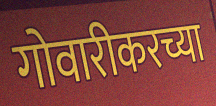
गोवारीकरच्या